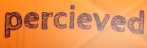
percieved